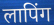
लापिंग